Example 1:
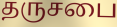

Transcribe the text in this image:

தருசபை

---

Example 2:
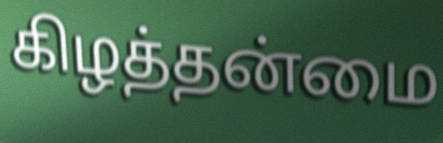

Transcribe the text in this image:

கிழத்தன்மை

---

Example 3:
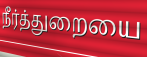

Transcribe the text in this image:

நீர்த்துறையை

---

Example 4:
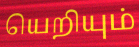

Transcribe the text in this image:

யெறியும்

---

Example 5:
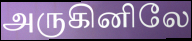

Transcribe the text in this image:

அருகினிலே